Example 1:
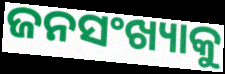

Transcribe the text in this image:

ଜନସଂଖ୍ୟାକୁ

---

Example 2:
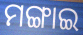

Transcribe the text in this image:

ମଙ୍ଗାଇ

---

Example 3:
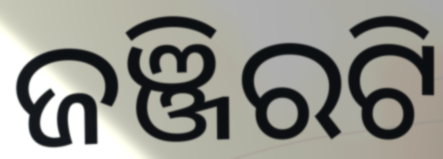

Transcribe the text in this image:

ଜଞ୍ଜିରଟି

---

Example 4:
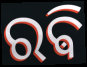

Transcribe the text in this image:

ରଵି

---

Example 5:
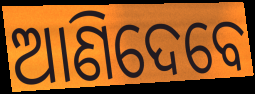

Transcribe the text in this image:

ଆଣିଦେବେ